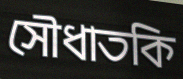
সৌধাতকি